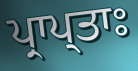
ਪ੍ਰਾਪ੍ਤਾਃ